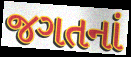
જગતનાં